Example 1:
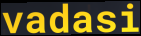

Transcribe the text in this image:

vadasi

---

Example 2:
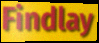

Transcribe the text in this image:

Findlay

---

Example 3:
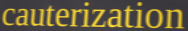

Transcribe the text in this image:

cauterization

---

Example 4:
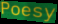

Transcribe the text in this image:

Poesy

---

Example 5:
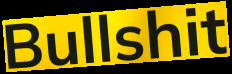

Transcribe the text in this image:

Bullshit